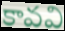
కావవి